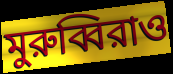
মুরুব্বিরাও